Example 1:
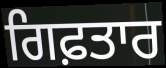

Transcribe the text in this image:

ਗਿਫ਼ਤਾਰ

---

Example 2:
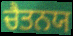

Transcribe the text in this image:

ਚੈਤਨਯ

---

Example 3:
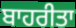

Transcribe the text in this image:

ਬਾਹਰੀਤਾ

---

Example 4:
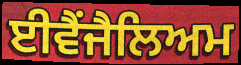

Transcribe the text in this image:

ਈਵੈਂਜੈਲਿਅਮ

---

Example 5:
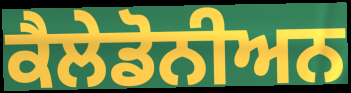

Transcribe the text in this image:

ਕੈਲੇਡੋਨੀਅਨ